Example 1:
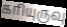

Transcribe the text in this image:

கரியுருவு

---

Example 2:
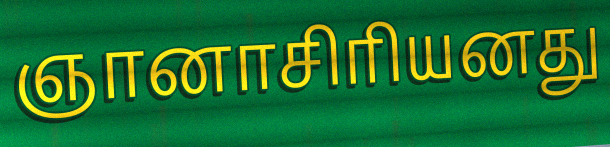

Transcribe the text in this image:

ஞானாசிரியனது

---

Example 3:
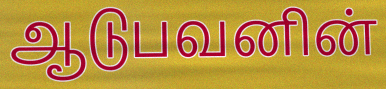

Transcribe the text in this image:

ஆடுபவனின்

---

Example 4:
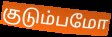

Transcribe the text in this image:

குடும்பமோ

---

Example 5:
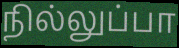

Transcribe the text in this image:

நில்லுப்பா